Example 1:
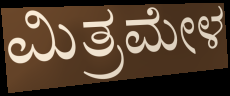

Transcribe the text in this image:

ಮಿತ್ರಮೇಳ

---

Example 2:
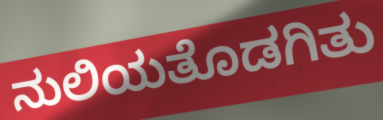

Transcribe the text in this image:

ನುಲಿಯತೊಡಗಿತು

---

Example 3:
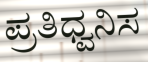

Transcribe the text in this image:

ಪ್ರತಿಧ್ವನಿಸ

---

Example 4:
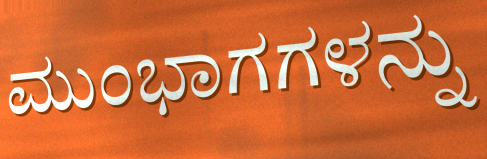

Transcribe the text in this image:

ಮುಂಭಾಗಗಳನ್ನು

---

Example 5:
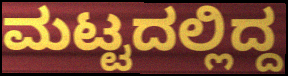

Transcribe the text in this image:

ಮಟ್ಟದಲ್ಲಿದ್ದ